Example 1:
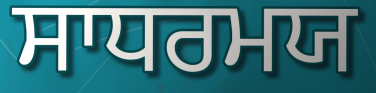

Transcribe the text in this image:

ਸਾਧਰਮਯ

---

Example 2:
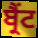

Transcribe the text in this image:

ਬ੍ਰੈਂਟ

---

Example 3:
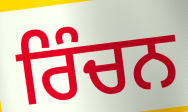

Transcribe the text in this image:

ਰਿੰਚਨ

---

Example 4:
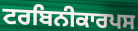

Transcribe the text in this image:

ਟਰਬਿਨੀਕਾਰਪਸ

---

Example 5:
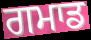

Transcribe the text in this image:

ਗਮਾਡ